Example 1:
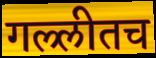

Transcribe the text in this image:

गल्लीतच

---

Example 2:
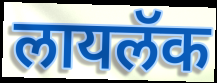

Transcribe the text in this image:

लायलॅक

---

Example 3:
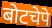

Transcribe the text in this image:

बोटचेपे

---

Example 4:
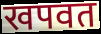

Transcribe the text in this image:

खपवत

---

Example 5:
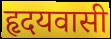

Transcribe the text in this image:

हृदयवासी